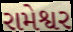
રામેશ્વર